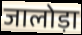
जालोड़ा